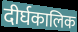
दीर्घकालिक